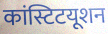
कांस्टिटयूशन